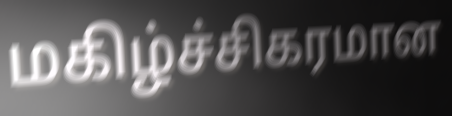
மகிழ்ச்சிகரமான